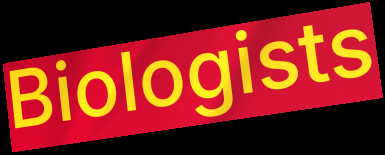
Biologists